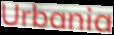
Urbania